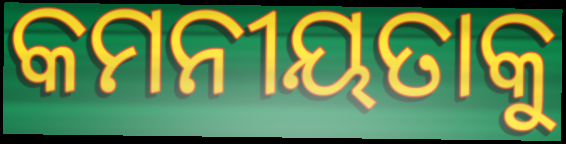
କମନୀୟତାକୁ